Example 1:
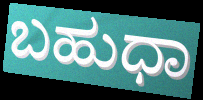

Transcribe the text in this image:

ಬಹುಧಾ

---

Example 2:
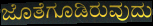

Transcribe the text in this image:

ಜೊತೆಗೂಡಿರುವುದು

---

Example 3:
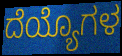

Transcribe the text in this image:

ದೆಯ್ಯೊಗಳ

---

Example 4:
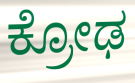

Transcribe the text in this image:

ಕ್ರೋಢ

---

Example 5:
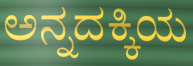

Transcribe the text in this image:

ಅನ್ನದಕ್ಕಿಯ